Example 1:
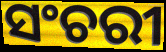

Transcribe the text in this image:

ସଂଚରୀ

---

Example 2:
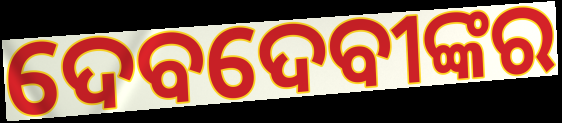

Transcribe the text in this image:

ଦେବଦେବୀଙ୍କର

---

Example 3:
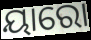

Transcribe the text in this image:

ୟାରୋ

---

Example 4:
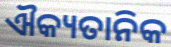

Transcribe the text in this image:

ଐକ୍ୟତାନିକ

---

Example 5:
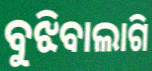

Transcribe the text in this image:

ବୁଝିବାଲାଗି